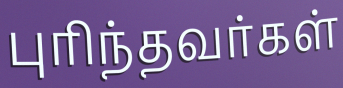
புரிந்தவர்கள்